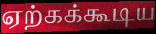
ஏற்கக்கூடிய